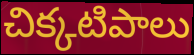
చిక్కటిపాలు